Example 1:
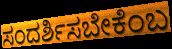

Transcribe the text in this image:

ಸಂದರ್ಶಿಸಬೇಕೆಂಬ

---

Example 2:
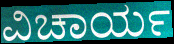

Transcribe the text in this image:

ವಿಚಾರ್ಯ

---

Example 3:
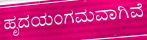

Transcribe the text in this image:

ಹೃದಯಂಗಮವಾಗಿವೆ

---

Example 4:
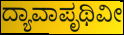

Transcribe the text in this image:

ದ್ಯಾವಾಪೃಥಿವೀ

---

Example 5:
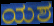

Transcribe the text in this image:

ಯಶ